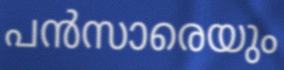
പൻസാരെയും